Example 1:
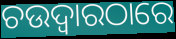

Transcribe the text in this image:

ଚଉଦ୍ଵାରଠାରେ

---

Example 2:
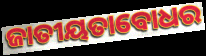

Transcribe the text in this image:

ଜାତୀୟତାବୋଧର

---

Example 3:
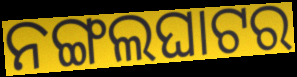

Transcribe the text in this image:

ନଙ୍ଗଲଘାଟର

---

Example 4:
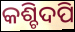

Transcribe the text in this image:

କଶ୍ଚିଦପି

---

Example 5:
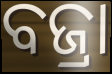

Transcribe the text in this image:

ବଜ୍ରା